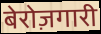
बेरोज़गारी